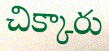
చిక్కారు